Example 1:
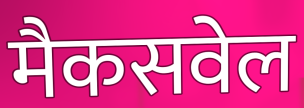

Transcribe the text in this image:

मैकसवेल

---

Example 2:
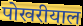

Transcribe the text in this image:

पोखरीयाल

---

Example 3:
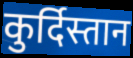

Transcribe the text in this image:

कुर्दिस्तान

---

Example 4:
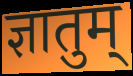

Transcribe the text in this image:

ज्ञातुम्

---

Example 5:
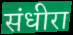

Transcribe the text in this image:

संधीरा